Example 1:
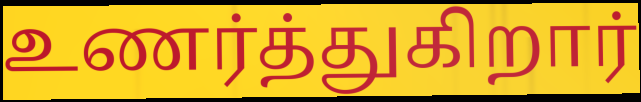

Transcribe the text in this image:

உணர்த்துகிறார்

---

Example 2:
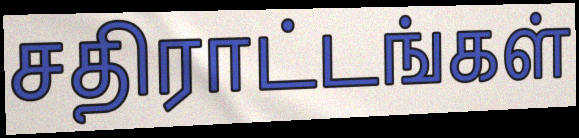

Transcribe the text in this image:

சதிராட்டங்கள்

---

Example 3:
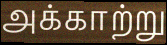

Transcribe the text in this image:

அக்காற்று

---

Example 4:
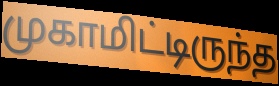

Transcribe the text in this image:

முகாமிட்டிருந்த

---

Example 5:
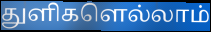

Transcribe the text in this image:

துளிகளெல்லாம்